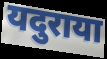
यदुराया